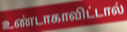
உண்டாகாவிட்டால்